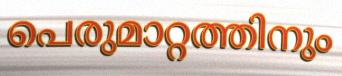
പെരുമാറ്റത്തിനും